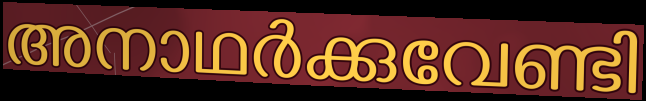
അനാഥർക്കുവേണ്ടി